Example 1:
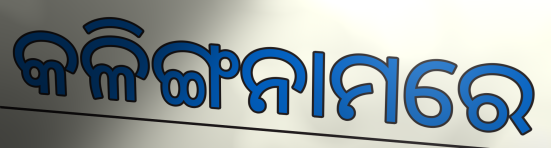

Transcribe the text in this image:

କଳିଙ୍ଗନାମରେ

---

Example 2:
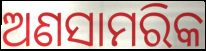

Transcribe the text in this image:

ଅଣସାମରିକ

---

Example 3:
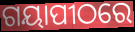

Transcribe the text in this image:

ଗୟାପୀଠରେ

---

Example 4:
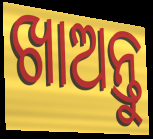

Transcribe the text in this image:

ଖାଅନ୍ତୁ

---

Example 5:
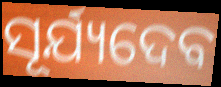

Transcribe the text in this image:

ସୂର୍ଯ୍ୟଦେବ